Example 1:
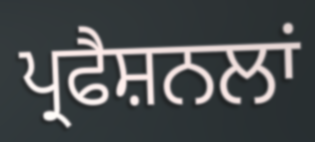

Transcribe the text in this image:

ਪ੍ਰਫੈਸ਼ਨਲਾਂ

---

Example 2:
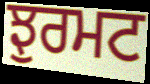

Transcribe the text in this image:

ਝੁਰਮਟ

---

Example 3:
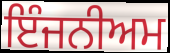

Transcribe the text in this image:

ਇੰਜਨੀਅਮ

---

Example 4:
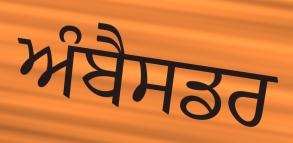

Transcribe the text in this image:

ਅੰਬੈਸਡਰ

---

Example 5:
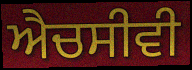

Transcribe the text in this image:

ਐਚਸੀਵੀ